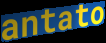
antato